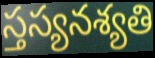
స్తస్యనశ్యతి